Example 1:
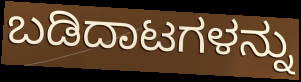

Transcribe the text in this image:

ಬಡಿದಾಟಗಳನ್ನು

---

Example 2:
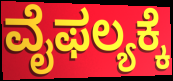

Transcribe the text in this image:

ವೈಫಲ್ಯಕ್ಕೆ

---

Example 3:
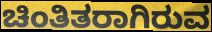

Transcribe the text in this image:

ಚಿಂತಿತರಾಗಿರುವ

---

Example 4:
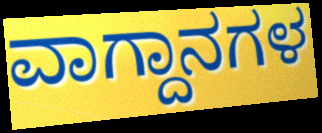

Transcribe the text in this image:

ವಾಗ್ದಾನಗಳ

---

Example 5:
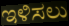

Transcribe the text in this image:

ಇಳಿಸಲು